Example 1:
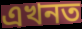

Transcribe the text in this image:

এখনত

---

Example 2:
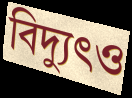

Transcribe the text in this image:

বিদ্যুৎও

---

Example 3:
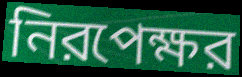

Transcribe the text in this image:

নিরপেক্ষর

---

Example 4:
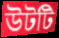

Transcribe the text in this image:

উটটি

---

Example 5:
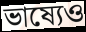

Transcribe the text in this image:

ভাষ্যেও